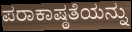
ಪರಾಕಾಷ್ಠತೆಯನ್ನು